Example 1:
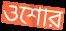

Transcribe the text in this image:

ওশোর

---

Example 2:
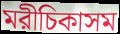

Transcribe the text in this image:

মরীচিকাসম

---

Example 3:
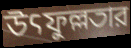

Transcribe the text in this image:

উৎফুল্লতার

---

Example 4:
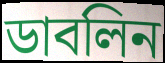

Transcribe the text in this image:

ডাবলিন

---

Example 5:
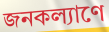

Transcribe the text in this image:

জনকল্যাণে